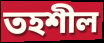
তহশীল